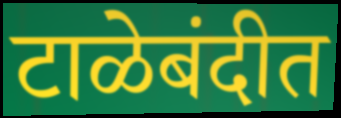
टाळेबंदीत